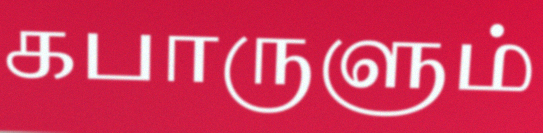
கபாருளும்